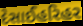
દેસાઈહરિહર